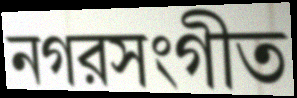
নগরসংগীত